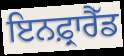
ਇਨਫ਼੍ਰਾਰੈੱਡ